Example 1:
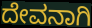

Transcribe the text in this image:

ದೇವನಾಗಿ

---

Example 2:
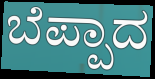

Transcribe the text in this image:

ಬೆಪ್ಪಾದ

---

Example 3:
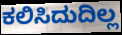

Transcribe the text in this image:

ಕಲಿಸಿದುದಿಲ್ಲ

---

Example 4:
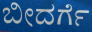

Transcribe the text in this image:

ಬೀದರ್ಗೆ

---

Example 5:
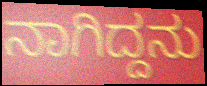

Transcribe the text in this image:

ನಾಗಿದ್ದನು